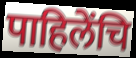
पाहिलेंचि